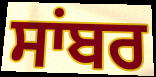
ਸਾਂਬਰ